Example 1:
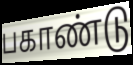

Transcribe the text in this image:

பகாண்டு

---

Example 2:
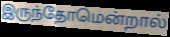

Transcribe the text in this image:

இருந்தோமென்றால்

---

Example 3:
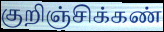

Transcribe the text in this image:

குறிஞ்சிக்கண்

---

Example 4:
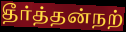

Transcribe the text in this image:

தீர்த்தன்நற்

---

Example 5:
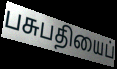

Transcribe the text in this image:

பசுபதியைப்